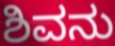
ಶಿವನು